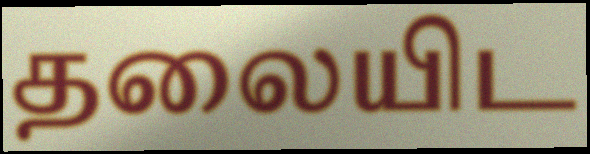
தலையிட